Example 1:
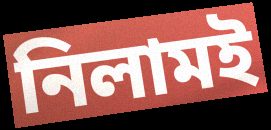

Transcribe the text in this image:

নিলামই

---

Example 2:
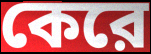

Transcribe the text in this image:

কেরে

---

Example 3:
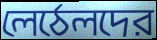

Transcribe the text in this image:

লেঠেলদের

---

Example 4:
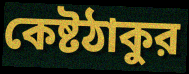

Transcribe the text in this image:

কেষ্টঠাকুর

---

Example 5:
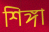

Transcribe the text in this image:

শিঙ্গা